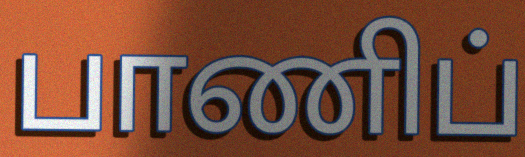
பாணிப்